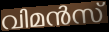
വിമൻസ്